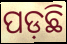
ପଡ଼ଛି